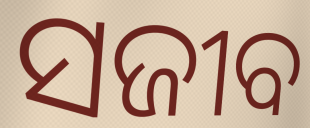
ସଜୀବ